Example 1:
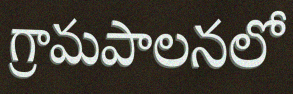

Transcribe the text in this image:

గ్రామపాలనలో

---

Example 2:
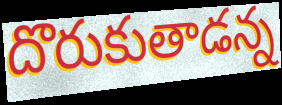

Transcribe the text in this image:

దొరుకుతాడన్న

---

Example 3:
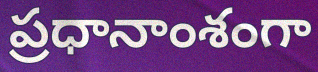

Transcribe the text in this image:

ప్రధానాంశంగా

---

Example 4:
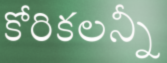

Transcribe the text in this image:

కోరికలన్నీ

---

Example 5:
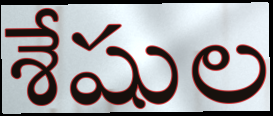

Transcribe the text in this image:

శేషుల